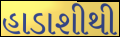
હાડાશીથી